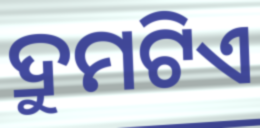
ଦ୍ରୁମଟିଏ